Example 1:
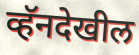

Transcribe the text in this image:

व्हॅनदेखील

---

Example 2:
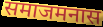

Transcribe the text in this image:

समाजमनास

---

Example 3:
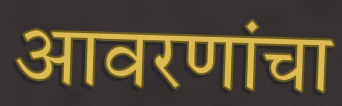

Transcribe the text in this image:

आवरणांचा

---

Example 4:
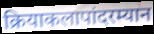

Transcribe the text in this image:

क्रियाकलापांदरम्यान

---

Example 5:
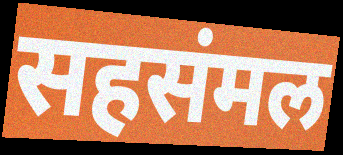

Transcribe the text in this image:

सहसंमल